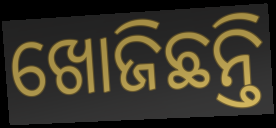
ଖୋଜିଛନ୍ତି